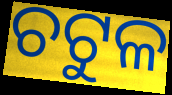
ଚଟୁଳ